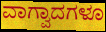
ವಾಗ್ವಾದಗಳೂ